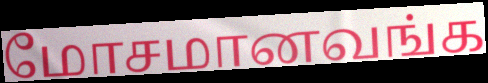
மோசமானவங்க